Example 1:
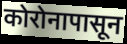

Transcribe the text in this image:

कोरोनापासून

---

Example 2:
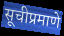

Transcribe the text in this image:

सूचीप्रमाणे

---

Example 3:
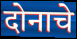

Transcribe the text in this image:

दोनाचे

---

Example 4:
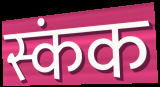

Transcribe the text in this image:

स्कंक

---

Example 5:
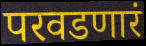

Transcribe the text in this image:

परवडणारं